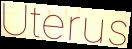
Uterus